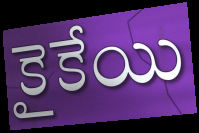
కైకేయి